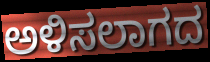
ಅಳಿಸಲಾಗದ